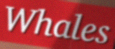
Whales